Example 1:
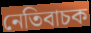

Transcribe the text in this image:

নেতিবাচক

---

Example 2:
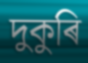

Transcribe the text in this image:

দুকুৰি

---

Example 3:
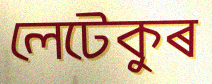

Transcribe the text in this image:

লেটেকুৰ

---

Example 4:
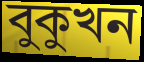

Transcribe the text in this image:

বুকুখন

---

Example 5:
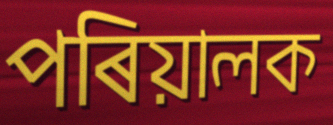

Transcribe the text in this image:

পৰিয়ালক